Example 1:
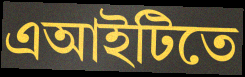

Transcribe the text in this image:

এআইটিতে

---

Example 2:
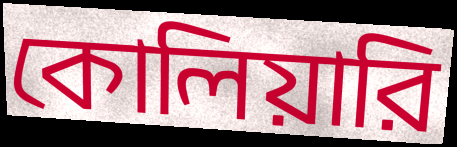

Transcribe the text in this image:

কোলিয়ারি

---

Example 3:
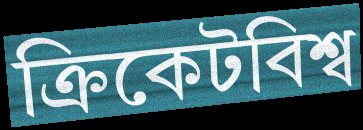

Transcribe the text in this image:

ক্রিকেটবিশ্ব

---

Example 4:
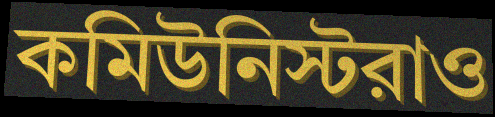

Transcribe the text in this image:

কমিউনিস্টরাও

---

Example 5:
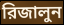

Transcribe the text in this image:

রিজালুন